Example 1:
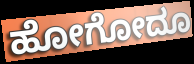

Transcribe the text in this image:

ಹೋಗೋದೂ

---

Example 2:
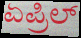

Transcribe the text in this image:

ಏಪ್ರಿಲ್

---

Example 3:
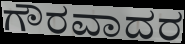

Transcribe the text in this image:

ಗೌರವಾದರ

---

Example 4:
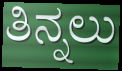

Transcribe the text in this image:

ತಿನ್ನಲು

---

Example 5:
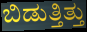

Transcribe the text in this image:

ಬಿಡುತ್ತಿತ್ತು